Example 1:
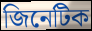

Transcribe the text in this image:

জিনেটিক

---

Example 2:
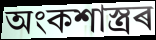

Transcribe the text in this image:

অংকশাস্ত্ৰৰ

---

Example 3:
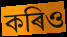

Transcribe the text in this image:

কৰিও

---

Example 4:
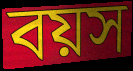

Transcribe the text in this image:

বয়স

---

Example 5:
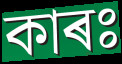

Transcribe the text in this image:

কাৰঃ